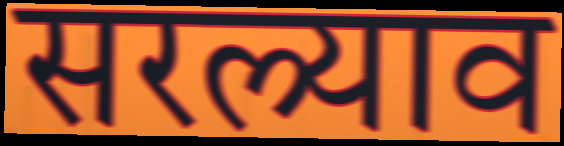
सरल्याव